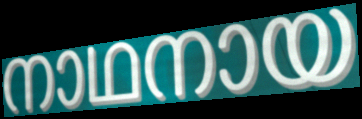
നാഥനായ